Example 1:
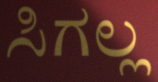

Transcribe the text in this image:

ಸಿಗಲ್ಲ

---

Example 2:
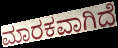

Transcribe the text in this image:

ಮಾರಕವಾಗಿದೆ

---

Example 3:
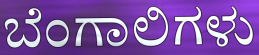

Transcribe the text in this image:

ಬೆಂಗಾಲಿಗಳು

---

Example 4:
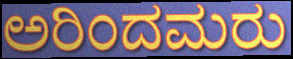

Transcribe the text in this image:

ಅರಿಂದಮರು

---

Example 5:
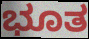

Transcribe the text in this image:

ಭೂತ